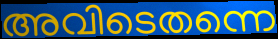
അവിടെതന്നെ